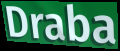
Draba